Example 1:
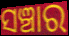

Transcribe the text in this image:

ସଞ୍ଚାର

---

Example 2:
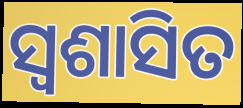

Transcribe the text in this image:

ସ୍ୱଶାସିତ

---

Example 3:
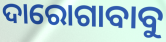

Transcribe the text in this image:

ଦାରୋଗାବାବୁ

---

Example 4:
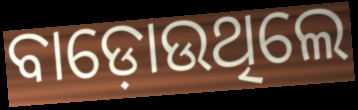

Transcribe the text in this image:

ବାଡ଼ୋଉଥିଲେ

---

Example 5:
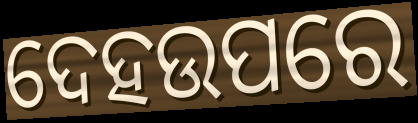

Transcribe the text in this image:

ଦେହଉପରେ